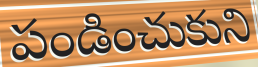
పండించుకుని